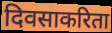
दिवसाकरिता